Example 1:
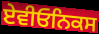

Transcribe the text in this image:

ਏਵੀਓਨਿਕਸ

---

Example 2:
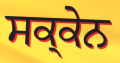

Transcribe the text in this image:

ਸਕ੍ਕੇਨ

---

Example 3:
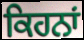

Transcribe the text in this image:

ਕਿਹਨਾਂ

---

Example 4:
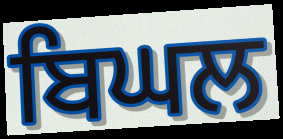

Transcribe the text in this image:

ਬਿਘਲ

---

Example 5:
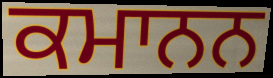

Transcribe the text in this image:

ਕਮਾਨਨ